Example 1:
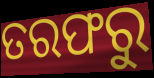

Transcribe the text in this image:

ତରଫରୁ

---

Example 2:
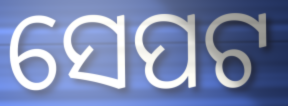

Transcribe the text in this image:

ସେପଟ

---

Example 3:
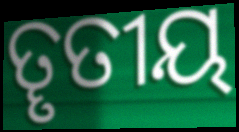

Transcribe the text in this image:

ତୄତୀୟ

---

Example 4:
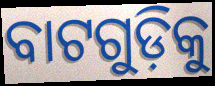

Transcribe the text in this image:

ବାଟଗୁଡ଼ିକୁ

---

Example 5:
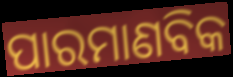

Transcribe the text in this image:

ପାରମାଣବିକ